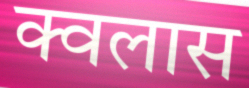
क्वलास